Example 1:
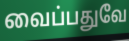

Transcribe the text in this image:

வைப்பதுவே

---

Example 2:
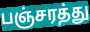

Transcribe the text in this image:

பஞ்சரத்து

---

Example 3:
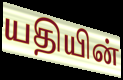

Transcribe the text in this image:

யதியின்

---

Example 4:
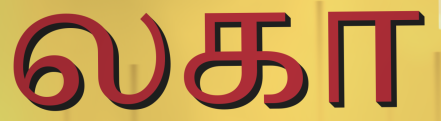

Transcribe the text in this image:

லகா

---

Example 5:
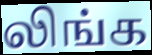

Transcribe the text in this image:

லிங்க